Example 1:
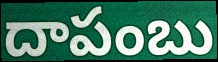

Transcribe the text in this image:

దాపంబు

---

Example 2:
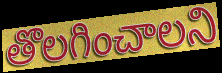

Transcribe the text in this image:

తొలగించాలని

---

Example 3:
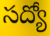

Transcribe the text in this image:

సద్యో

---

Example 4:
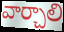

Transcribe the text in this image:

వార్చాలి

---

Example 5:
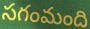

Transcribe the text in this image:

సగంమంది